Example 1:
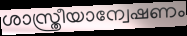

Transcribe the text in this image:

ശാസ്ത്രീയാന്വേഷണം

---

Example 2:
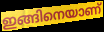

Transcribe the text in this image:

ഇങ്ങിനെയാണ്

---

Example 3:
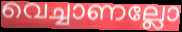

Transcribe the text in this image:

വെച്ചാണല്ലോ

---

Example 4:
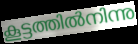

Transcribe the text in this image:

കൂട്ടത്തിൽനിന്നു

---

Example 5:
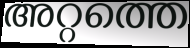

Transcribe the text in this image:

അറ്റത്തെ